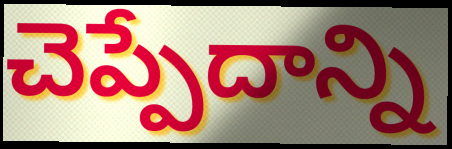
చెప్పేదాన్ని